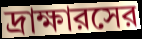
দ্রাক্ষারসের